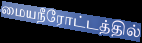
மையநீரோட்டத்தில்